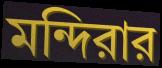
মন্দিরার